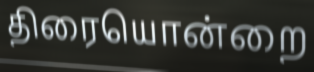
திரையொன்றை